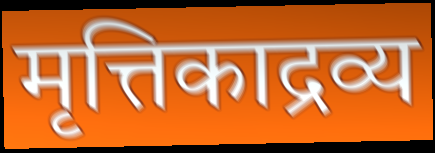
मृत्तिकाद्रव्य